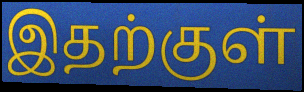
இதற்குள்